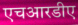
एचआरडीए